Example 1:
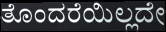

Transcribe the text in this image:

ತೊಂದರೆಯಿಲ್ಲದೇ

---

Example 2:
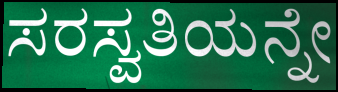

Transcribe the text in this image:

ಸರಸ್ವತಿಯನ್ನೇ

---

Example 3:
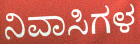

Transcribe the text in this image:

ನಿವಾಸಿಗಳ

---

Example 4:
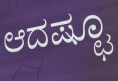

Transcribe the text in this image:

ಆದಷ್ಟೂ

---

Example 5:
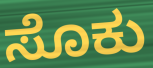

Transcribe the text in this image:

ಸೊಕು